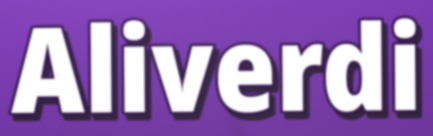
Aliverdi